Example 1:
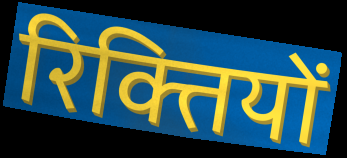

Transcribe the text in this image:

रिक्तियों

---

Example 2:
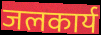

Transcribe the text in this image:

जलकार्य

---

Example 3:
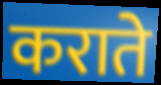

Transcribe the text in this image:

कराते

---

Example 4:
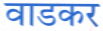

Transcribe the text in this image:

वाडकर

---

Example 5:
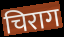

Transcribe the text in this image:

चिराग